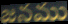
జనము